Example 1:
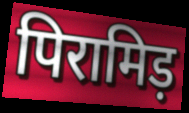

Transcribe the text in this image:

पिरामिड़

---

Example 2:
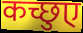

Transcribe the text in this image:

कच्छुए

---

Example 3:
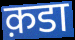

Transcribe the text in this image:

क़डा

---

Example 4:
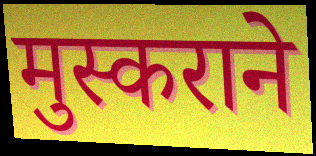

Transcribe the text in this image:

मुस्कराने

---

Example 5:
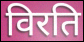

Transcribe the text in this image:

विरति